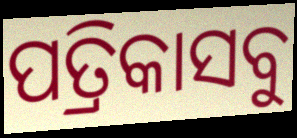
ପତ୍ରିକାସବୁ